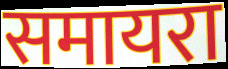
समायरा